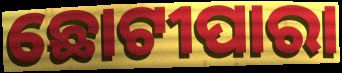
ଛୋଟୀପାରା